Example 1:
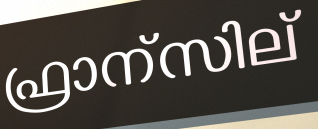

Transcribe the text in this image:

ഫ്രാന്സില്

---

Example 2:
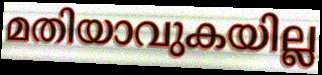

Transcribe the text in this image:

മതിയാവുകയില്ല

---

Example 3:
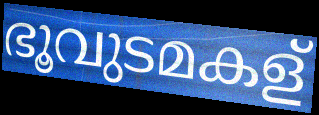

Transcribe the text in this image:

ഭൂവുടമകള്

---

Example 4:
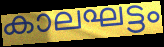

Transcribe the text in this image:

കാലഘട്ടം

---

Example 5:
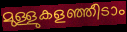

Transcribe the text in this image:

മുള്ളുകളഞ്ഞീടാം